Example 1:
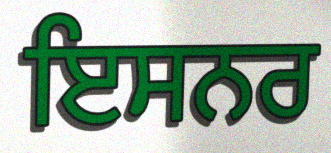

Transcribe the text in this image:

ਇਸਨਰ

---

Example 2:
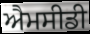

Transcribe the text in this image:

ਐਮਸੀਡੀ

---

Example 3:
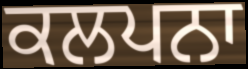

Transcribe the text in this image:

ਕਲਪਨਾ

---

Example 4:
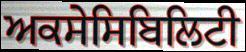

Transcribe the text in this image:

ਅਕਸੇਸਿਬਿਲਿਟੀ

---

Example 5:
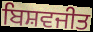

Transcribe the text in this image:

ਬਿਸ਼ਵਜੀਤ